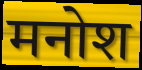
मनोश